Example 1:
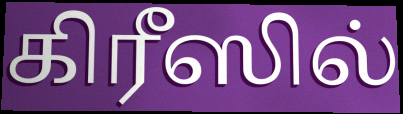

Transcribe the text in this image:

கிரீஸில்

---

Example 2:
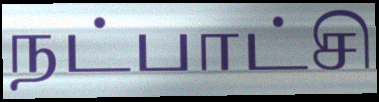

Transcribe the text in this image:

நட்பாட்சி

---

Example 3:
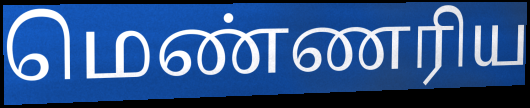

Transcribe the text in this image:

மெண்ணரிய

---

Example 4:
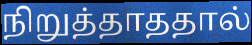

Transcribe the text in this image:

நிறுத்தாததால்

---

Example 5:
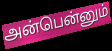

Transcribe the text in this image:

அன்பென்னும்